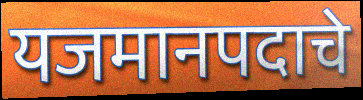
यजमानपदाचे